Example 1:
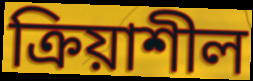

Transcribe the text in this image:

ক্ৰিয়াশীল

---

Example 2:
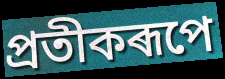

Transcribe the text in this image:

প্ৰতীকৰূপে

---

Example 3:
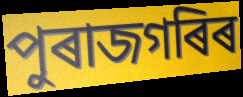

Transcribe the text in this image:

পুৰাজগৰিৰ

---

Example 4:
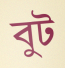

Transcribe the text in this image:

বুট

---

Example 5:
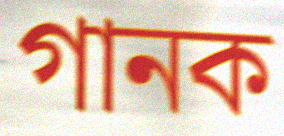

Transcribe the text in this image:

গানক